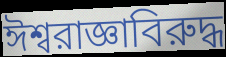
ঈশ্বরাজ্ঞাবিরুদ্ধ